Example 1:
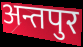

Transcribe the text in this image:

अन्तपुर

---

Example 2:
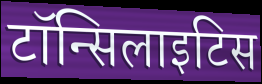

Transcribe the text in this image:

टॉन्सिलाइटिस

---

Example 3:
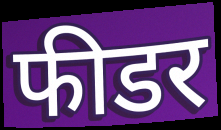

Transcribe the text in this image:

फीडर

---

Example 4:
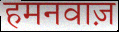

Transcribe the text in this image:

हमनवाज़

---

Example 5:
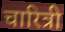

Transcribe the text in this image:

चारित्री